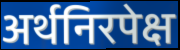
अर्थनिरपेक्ष